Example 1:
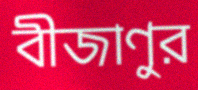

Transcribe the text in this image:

বীজাণুর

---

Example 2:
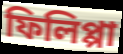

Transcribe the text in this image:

ফিলিপ্পা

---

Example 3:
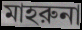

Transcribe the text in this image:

মাহরুনা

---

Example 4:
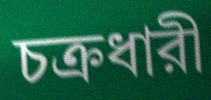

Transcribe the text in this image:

চক্রধারী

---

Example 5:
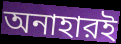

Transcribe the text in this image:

অনাহারই